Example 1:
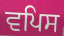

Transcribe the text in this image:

ਵਪਿਸ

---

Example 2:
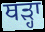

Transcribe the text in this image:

ਥੜ੍ਹਾ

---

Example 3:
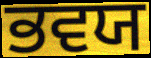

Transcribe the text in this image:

ਭਵਯ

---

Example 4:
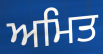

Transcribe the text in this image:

ਅਮਿਤ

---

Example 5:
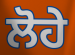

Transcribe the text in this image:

ਲੋਹੇ